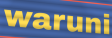
waruni